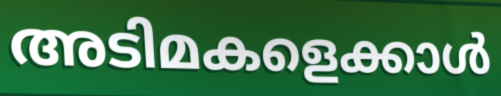
അടിമകളെക്കാൾ